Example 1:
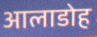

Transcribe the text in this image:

आलाडोह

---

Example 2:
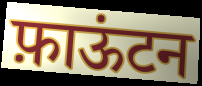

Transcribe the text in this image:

फ़ाऊंटन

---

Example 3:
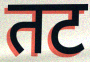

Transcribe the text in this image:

तट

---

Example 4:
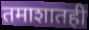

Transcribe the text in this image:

तमाशातही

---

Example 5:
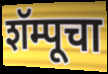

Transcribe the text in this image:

शॅम्पूचा